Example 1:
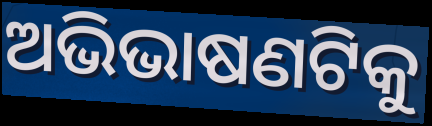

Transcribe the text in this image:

ଅଭିଭାଷଣଟିକୁ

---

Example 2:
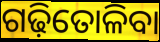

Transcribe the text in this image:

ଗଢ଼ିତୋଳିବା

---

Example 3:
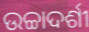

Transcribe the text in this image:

ଉଚ୍ଚାଦର୍ଶୀ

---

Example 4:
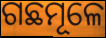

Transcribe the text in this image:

ଗଛମୂଳେ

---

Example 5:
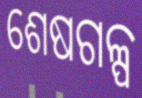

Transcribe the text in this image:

ଶେଷଗଳ୍ପ